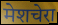
मेशचेरा